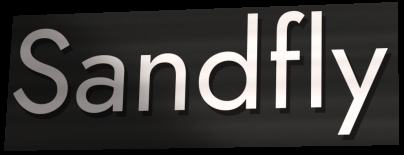
Sandfly